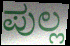
ಪುಲ್ಲ